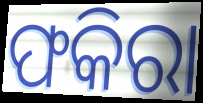
ଫକିରା